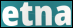
etna